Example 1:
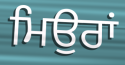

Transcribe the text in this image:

ਮਿਉਰਾਂ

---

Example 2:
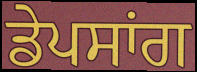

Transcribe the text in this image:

ਡੇਪਸਾਂਗ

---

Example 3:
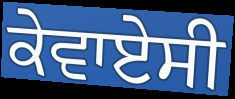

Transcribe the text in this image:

ਕੇਵਾਏਸੀ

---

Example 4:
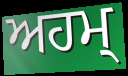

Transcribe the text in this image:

ਅਹਮ੍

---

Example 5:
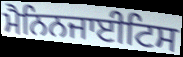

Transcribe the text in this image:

ਮੈਨਿਨਜਾਈਟਿਸ